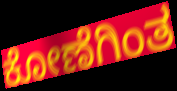
ಕೋಣೆಗಿಂತ